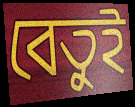
বেতুই